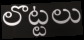
లొట్టలు